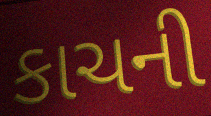
કાચની